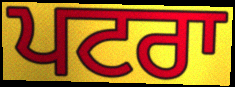
ਪਟਰਾ